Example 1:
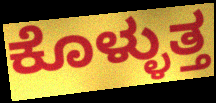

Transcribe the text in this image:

ಕೊಳ್ಳುತ್ತ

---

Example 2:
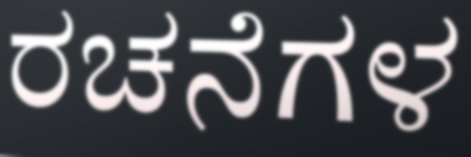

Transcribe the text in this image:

ರಚನೆಗಳ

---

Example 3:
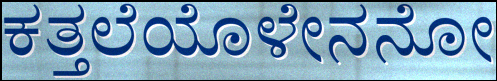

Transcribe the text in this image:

ಕತ್ತಲೆಯೊಳೇನನೋ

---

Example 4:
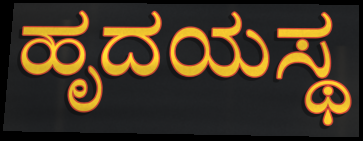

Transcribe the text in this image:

ಹೃದಯಸ್ಥ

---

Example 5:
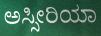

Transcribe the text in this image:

ಅಸ್ಸೀರಿಯಾ